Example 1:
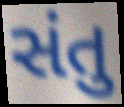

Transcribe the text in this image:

સંતુ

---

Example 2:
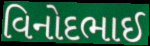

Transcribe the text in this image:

વિનોદભાઈ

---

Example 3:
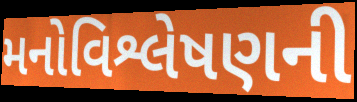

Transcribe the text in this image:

મનોવિશ્લેષણની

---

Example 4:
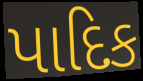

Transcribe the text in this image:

પાદિક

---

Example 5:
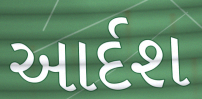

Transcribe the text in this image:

આર્દશ